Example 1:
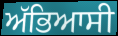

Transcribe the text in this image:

ਅੱਭਿਆਸੀ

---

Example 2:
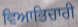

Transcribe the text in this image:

ਵਿਆਭਿਚਾਰੀ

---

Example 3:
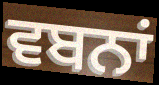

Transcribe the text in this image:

ਵਬਨਾਂ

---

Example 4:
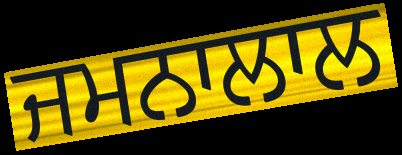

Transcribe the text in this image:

ਜਮਨਾਲਾਲ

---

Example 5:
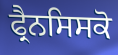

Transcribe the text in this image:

ਫ੍ਰੈਨਸਿਸਕੋ